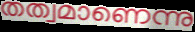
തത്വമാണെന്നു